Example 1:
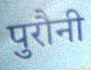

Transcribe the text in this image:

पुरौनी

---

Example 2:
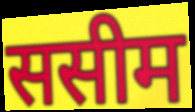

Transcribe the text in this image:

ससीम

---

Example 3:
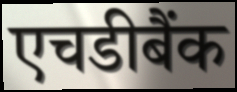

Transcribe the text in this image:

एचडीबैंक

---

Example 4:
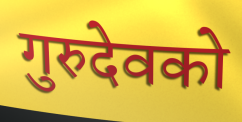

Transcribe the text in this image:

गुरुदेवको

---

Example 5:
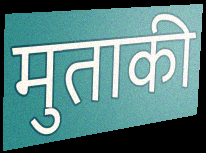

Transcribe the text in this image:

मुताकी